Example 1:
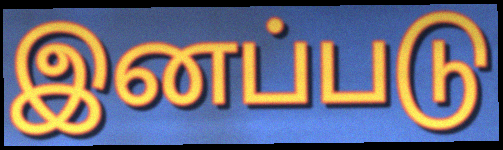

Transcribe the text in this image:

இனப்படு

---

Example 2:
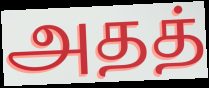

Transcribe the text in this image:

அதத்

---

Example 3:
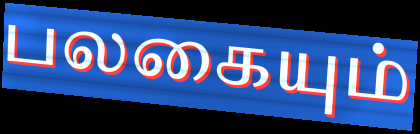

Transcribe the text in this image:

பலகையும்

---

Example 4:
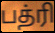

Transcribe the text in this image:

பத்ரி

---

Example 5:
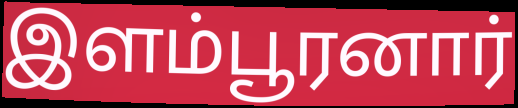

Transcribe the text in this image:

இளம்பூரனார்